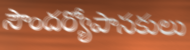
సౌందర్యోపాసకులు